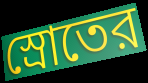
স্রোতের